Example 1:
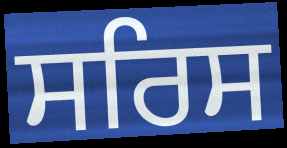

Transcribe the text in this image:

ਸਰਿਸ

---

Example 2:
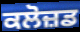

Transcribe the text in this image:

ਕਲੋਜ਼ਡ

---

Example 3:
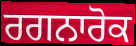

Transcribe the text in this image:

ਰਗਨਾਰੋਕ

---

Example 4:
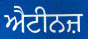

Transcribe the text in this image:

ਐਟੀਨਜ਼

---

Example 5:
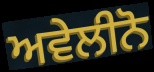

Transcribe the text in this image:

ਅਵੇਲੀਨੋ